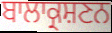
ਬਾਲਾਕ੍ਰਸ਼ਣਨ